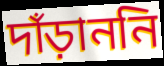
দাঁড়াননি